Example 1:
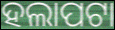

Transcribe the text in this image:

ହଲାପଟା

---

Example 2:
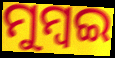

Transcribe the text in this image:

ମୁମ୍ୱଇ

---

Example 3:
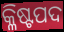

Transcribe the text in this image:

କ୍ଳିଷ୍ଟପଦ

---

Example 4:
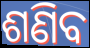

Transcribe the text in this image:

ଶଣିବ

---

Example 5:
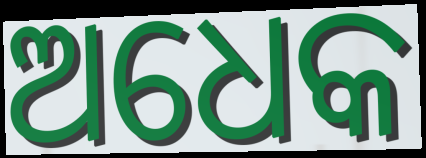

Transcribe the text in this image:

ଅଧେକ